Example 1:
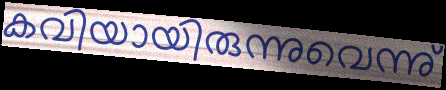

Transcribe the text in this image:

കവിയായിരുന്നുവെന്നു്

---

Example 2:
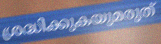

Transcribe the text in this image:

ശ്രദ്ധിക്കുകയുമരുത്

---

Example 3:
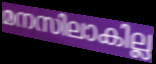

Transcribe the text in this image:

മനസിലാകില്ല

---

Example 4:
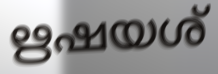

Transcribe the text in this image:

ഋഷയശ്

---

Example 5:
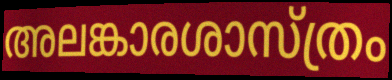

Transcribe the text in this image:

അലങ്കാരശാസ്ത്രം